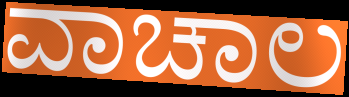
ವಾಚಾಲ